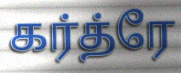
கர்த்ரே